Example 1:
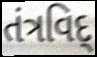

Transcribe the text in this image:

તંત્રવિદ્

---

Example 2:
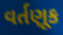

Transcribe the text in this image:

વર્તણૂક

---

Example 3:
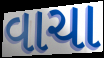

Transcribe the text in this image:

વાચા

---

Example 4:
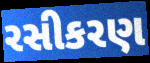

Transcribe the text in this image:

રસીકરણ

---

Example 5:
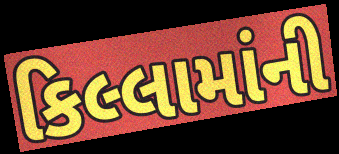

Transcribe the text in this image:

કિલ્લામાંની